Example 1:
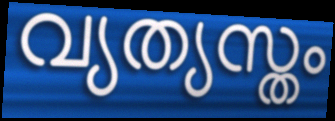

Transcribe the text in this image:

വ്യത്യസ്തം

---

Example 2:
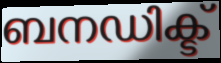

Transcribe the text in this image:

ബനഡിക്ട്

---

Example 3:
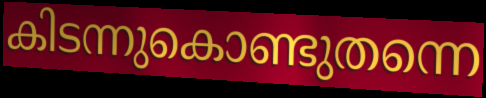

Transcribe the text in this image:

കിടന്നുകൊണ്ടുതന്നെ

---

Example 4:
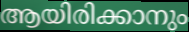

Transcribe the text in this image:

ആയിരിക്കാനും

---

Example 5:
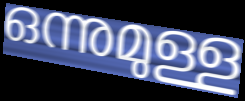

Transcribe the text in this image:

ഒന്നുമുള്ള